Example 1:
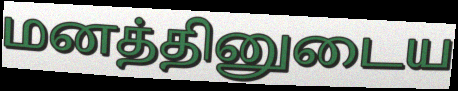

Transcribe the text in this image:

மனத்தினுடைய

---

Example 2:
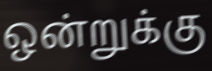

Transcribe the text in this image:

ஒன்றுக்கு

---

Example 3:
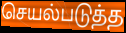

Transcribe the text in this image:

செயல்படுத்த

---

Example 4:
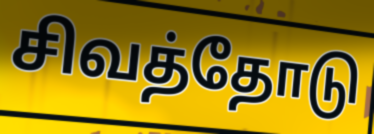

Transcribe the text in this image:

சிவத்தோடு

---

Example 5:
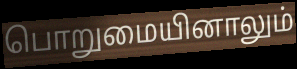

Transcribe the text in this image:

பொறுமையினாலும்